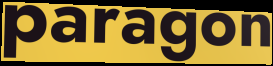
paragon